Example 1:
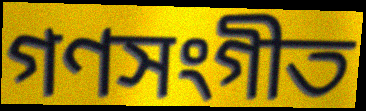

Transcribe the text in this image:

গণসংগীত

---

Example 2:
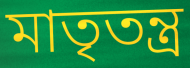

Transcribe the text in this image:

মাতৃতন্ত্র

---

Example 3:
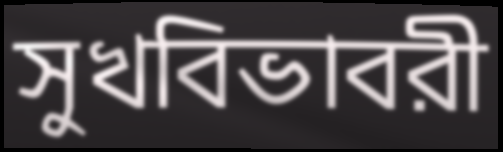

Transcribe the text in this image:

সুখবিভাবরী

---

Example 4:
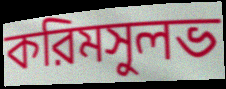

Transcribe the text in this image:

করিমসুলভ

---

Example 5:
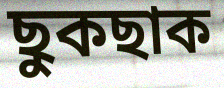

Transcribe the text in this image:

ছুকছাক